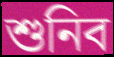
শুনিব